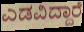
ಎಡವಿದ್ದಾರೆ